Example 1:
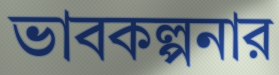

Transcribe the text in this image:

ভাবকল্পনার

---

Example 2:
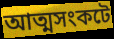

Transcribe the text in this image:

আত্মসংকটে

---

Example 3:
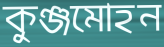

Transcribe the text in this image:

কুঞ্জমোহন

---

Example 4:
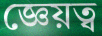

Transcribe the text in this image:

জ্ঞেয়ত্ব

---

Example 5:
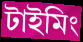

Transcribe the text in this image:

টাইমিং